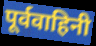
पूर्ववाहिनी